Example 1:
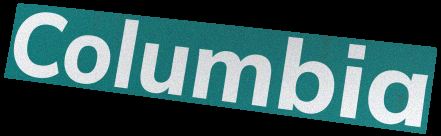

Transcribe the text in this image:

Columbia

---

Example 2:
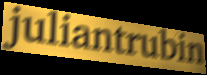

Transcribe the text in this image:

juliantrubin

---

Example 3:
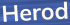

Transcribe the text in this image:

Herod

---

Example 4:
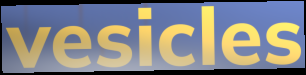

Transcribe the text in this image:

vesicles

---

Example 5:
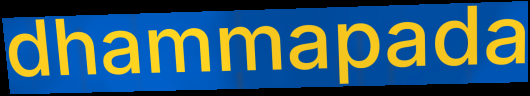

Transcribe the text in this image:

dhammapada